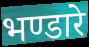
भण्डारे